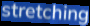
stretching